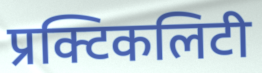
प्रक्टिकलिटी